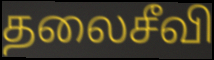
தலைசீவி